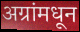
अग्रांमधून